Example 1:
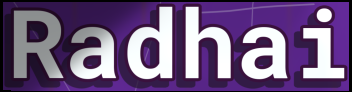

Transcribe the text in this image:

Radhai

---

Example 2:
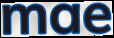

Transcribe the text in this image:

mae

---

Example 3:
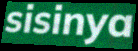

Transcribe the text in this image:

sisinya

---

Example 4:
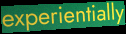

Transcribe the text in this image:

experientially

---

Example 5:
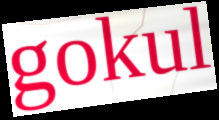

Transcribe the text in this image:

gokul